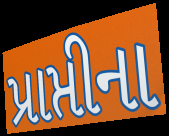
પ્રાપ્તીના